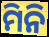
ମିନି